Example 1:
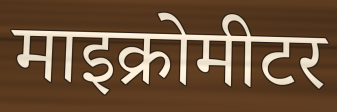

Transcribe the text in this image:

माइक्रोमीटर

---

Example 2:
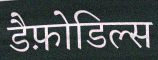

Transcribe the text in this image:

डैफ़ोडिल्स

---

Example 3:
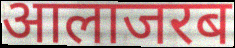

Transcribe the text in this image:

आलाजरब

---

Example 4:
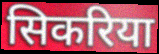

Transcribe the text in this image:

सिकरिया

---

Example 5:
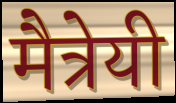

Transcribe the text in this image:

मैत्रेयी